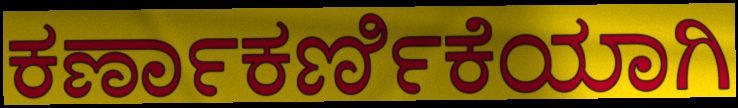
ಕರ್ಣಾಕರ್ಣಿಕೆಯಾಗಿ